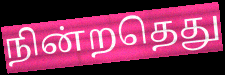
நின்றதெது